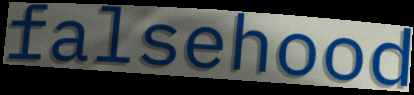
falsehood